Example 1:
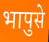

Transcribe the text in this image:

भापुसे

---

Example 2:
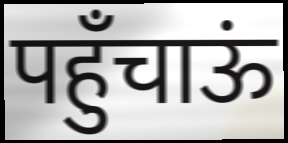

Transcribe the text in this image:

पहुँचाऊं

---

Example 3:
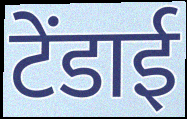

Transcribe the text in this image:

टेंडाई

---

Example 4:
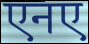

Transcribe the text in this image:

एनए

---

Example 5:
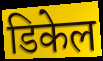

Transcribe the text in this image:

डिकेल